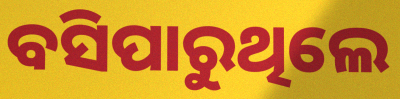
ବସିପାରୁଥିଲେ